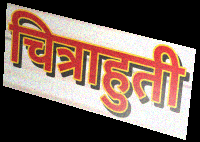
चित्राहुती